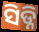
ସିଡ୍ନି